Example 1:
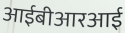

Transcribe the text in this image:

आईबीआरआई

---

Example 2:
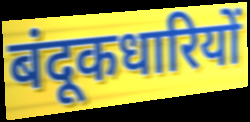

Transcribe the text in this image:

बंदूकधारियों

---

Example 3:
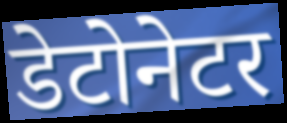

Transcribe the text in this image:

डेटोनेटर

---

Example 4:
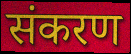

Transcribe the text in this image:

संकरण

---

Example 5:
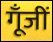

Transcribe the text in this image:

गूँजीं